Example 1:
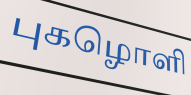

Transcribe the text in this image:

புகழொளி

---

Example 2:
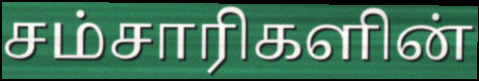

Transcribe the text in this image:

சம்சாரிகளின்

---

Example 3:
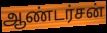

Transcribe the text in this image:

ஆண்டர்சன்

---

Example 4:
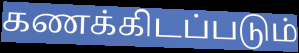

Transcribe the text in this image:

கணக்கிடப்படும்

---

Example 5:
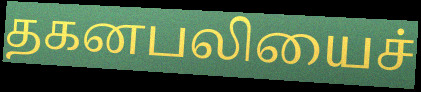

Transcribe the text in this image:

தகனபலியைச்